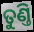
ତୁଣ୍ତି